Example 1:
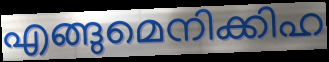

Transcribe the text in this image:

എങ്ങുമെനിക്കിഹ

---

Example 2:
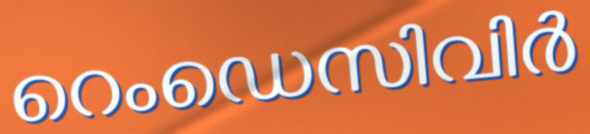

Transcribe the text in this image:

റെംഡെസിവിർ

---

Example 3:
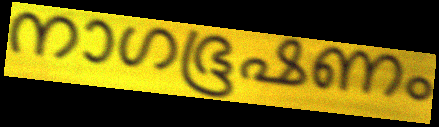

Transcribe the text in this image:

നാഗഭൂഷണം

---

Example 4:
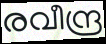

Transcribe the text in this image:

രവീന്ദ്ര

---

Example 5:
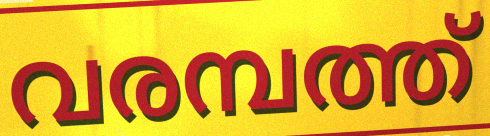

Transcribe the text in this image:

വരമ്പത്ത്